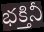
భక్తినీ